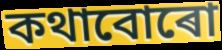
কথাবোৰো